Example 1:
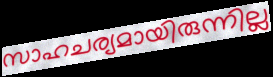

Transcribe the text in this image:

സാഹചര്യമായിരുന്നില്ല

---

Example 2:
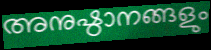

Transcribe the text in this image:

അനുഷ്ഠാനങ്ങളും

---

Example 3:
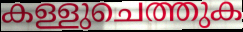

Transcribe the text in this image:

കള്ളുചെത്തുക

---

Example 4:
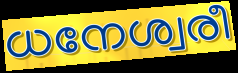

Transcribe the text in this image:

ധനേശ്വരീ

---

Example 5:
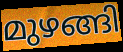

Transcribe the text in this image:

മുഴങ്ങി